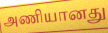
அணியானது